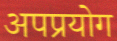
अपप्रयोग